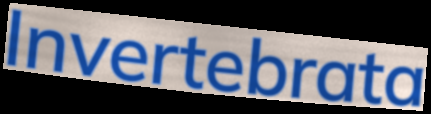
Invertebrata